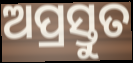
ଅପ୍ରସ୍ତୁତ